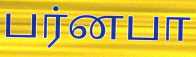
பர்னபா